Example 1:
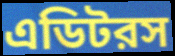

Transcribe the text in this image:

এডিটরস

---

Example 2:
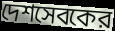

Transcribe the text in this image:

দেশসেবকের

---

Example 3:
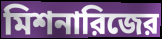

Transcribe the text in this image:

মিশনারিজের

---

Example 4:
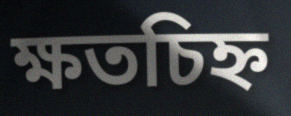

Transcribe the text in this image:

ক্ষতচিহ্ন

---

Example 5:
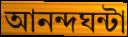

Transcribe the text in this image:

আনন্দঘন্টা